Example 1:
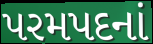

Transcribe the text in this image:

પરમપદનાં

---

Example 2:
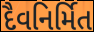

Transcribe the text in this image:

દૈવનિર્મિત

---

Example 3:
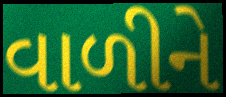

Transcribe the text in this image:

વાળીને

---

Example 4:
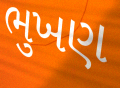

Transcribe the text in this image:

ભુખણ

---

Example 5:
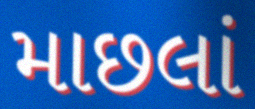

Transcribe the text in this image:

માછલાં